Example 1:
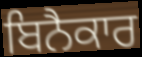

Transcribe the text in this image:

ਬਿਨੈਕਾਰ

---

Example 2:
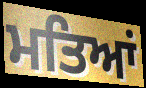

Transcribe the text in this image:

ਮਤਿਆਂ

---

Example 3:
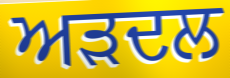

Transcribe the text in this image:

ਅੜਦਲ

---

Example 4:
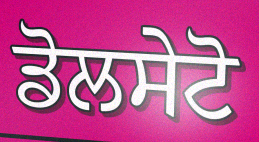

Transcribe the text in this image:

ਡੋਲਸੇਟੋ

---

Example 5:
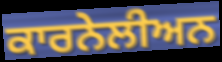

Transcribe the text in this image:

ਕਾਰਨੇਲੀਅਨ